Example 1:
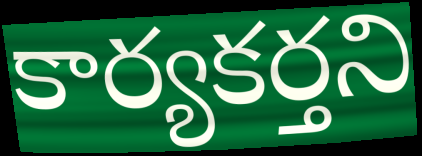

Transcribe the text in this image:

కార్యకర్తని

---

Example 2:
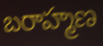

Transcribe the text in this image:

బరాహ్మణ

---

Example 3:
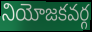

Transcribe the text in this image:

నియోజకవర్గ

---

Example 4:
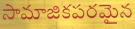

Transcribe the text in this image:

సామాజికపరమైన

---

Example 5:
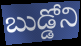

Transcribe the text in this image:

బుడ్డోని